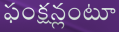
ఫంక్షన్లంటూ